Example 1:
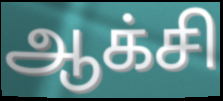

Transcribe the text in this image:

ஆக்சி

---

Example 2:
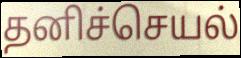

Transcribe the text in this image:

தனிச்செயல்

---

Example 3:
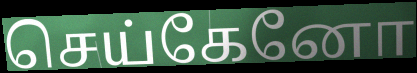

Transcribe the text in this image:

செய்கேனோ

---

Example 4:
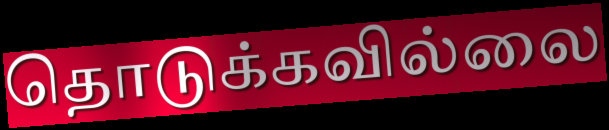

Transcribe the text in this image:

தொடுக்கவில்லை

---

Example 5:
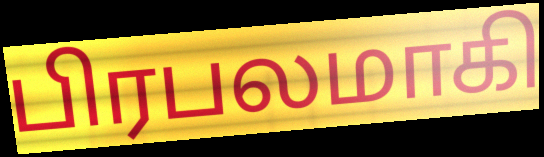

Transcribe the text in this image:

பிரபலமாகி